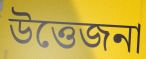
উত্তেজনা